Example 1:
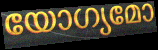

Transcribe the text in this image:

യോഗ്യമോ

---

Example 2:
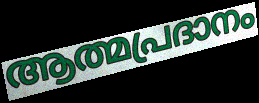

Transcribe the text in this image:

ആത്മപ്രദാനം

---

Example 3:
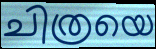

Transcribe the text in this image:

ചിത്രയെ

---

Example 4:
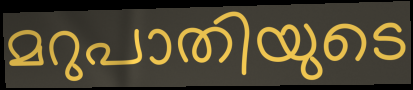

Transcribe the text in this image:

മറുപാതിയുടെ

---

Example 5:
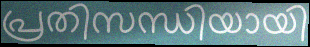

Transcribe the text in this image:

പ്രതിസന്ധിയായി